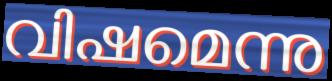
വിഷമെന്നു